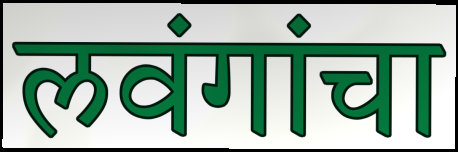
लवंगांचा